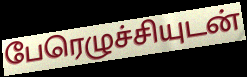
பேரெழுச்சியுடன்